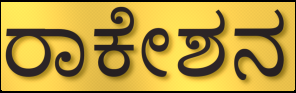
ರಾಕೇಶನ